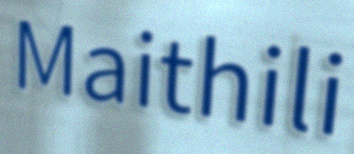
Maithili